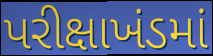
પરીક્ષાખંડમાં